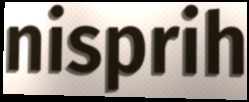
nisprih